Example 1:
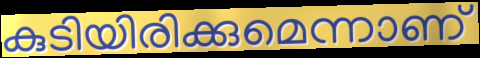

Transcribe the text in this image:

കുടിയിരിക്കുമെന്നാണ്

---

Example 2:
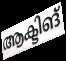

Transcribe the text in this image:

ആക്ടിങ്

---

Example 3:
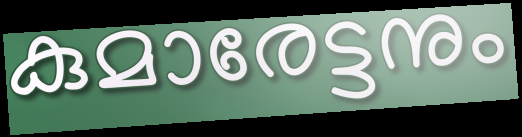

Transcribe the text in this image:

കുമാരേട്ടനും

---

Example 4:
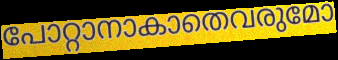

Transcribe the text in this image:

പോറ്റാനാകാതെവരുമോ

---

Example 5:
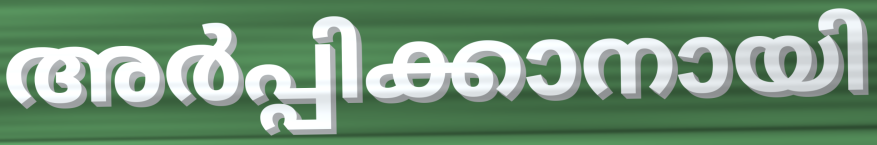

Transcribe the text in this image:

അർപ്പിക്കാനായി